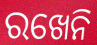
ରଖେନି